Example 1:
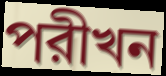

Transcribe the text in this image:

পরীখন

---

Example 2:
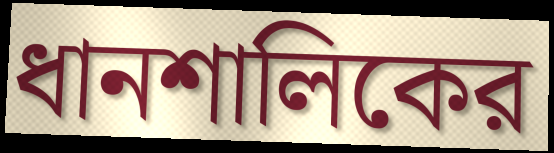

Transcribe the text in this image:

ধানশালিকের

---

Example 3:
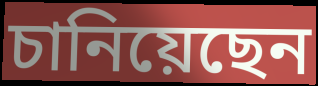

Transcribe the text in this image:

চানিয়েছেন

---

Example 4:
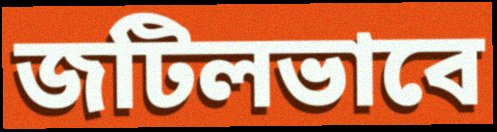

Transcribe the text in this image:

জটিলভাবে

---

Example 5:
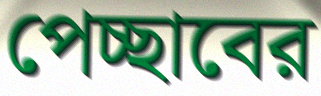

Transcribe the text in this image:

পেচ্ছাবের